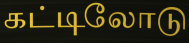
கட்டிலோடு